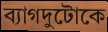
ব্যাগদুটোকে